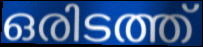
ഒരിടത്ത്